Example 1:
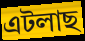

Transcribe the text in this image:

এটলাছ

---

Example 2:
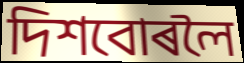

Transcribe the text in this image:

দিশবোৰলৈ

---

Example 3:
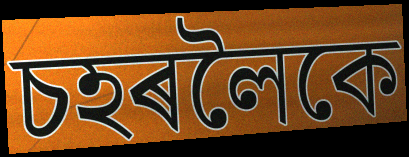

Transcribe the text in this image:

চহৰলৈকে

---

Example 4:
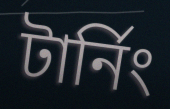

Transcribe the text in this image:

টাৰ্নিং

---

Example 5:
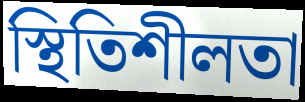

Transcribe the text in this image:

স্থিতিশীলতা